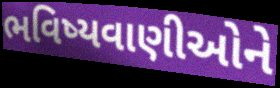
ભવિષ્યવાણીઓને